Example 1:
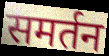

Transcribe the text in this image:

समर्तन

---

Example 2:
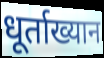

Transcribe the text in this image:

धूर्ताख्यान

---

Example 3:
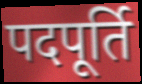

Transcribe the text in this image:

पदपूर्ति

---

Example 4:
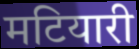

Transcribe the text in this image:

मटियारी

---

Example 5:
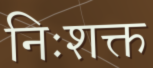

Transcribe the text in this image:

निःशक्त